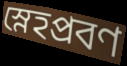
স্নেহপ্রবণ